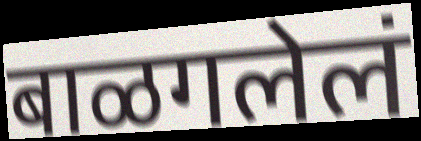
बाळगलेलं